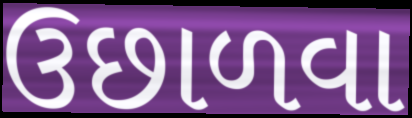
ઉછાળવા